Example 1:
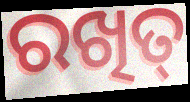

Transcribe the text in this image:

ରଖିତ୍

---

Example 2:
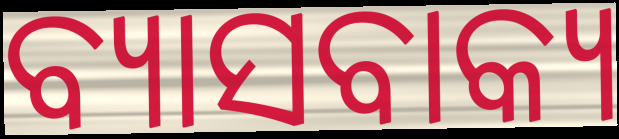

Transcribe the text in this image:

ବ୍ୟାସବାକ୍ୟ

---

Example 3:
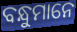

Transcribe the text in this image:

ବନ୍ଧୁମାନେ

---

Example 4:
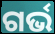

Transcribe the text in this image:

ଗର୍ଭ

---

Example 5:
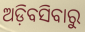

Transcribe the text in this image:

ଅଡ଼ିବସିବାରୁ